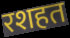
रशहत